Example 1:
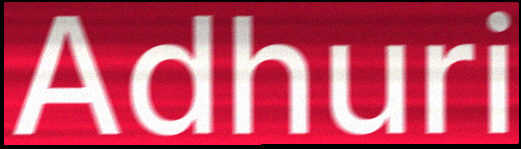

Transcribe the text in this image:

Adhuri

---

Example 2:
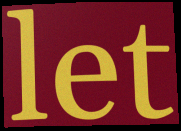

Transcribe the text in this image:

let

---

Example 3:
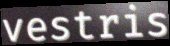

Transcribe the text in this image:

vestris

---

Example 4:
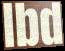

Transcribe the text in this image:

Ibd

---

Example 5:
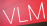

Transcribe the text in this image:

VLM